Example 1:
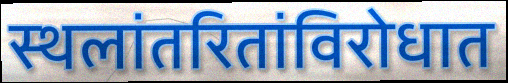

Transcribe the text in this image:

स्थलांतरितांविरोधात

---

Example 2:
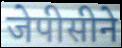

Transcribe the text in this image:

जेपीसीने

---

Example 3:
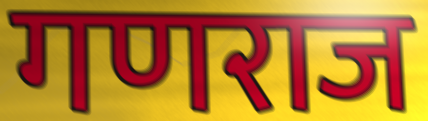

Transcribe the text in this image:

गणराज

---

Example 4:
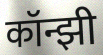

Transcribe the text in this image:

कॉन्झी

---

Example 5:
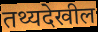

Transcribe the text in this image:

तथ्यदेखील